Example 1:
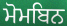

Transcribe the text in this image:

ਮੋਮਬਿਨ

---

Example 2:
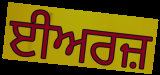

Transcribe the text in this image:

ਈਅਰਜ਼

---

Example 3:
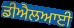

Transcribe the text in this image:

ਡੀਐਲਆਈ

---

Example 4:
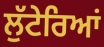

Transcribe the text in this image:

ਲੁੱਟੇਰਿਆਂ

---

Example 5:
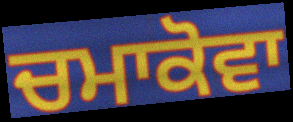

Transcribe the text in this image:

ਚਮਾਕੋਵਾ